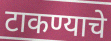
टाकण्याचे